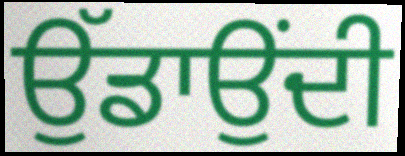
ਉੱਡਾਉਂਦੀ